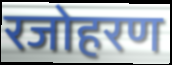
रजोहरण